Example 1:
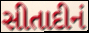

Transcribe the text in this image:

સીતાદીનં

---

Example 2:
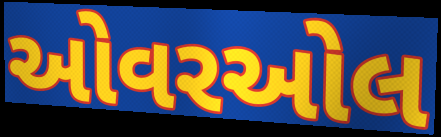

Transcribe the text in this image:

ઓવરઓલ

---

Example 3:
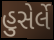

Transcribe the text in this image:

હુસેર્લે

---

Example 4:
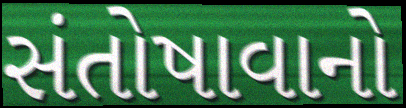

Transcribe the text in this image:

સંતોષાવાનો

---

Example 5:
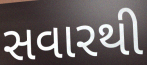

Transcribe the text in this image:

સવારથી